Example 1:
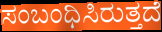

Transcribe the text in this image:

ಸಂಬಂಧಿಸಿರುತ್ತದೆ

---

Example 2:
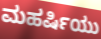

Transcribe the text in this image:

ಮಹರ್ಷಿಯು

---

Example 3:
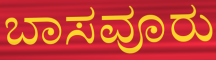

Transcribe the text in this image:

ಬಾಸವೂರು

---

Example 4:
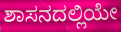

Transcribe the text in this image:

ಶಾಸನದಲ್ಲಿಯೇ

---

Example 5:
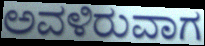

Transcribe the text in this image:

ಅವಳಿರುವಾಗ